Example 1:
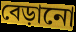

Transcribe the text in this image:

বেড়ানো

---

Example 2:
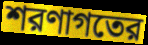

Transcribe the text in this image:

শরণাগতের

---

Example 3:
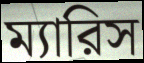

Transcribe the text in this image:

ম্যারিস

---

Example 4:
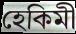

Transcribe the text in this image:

হেকিমী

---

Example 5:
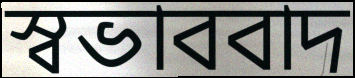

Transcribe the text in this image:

স্বভাববাদ